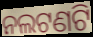
ନଲଟଣଟି